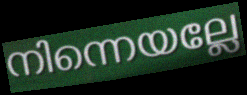
നിന്നെയല്ലേ